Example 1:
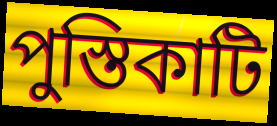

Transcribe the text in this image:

পুস্তিকাটি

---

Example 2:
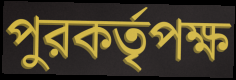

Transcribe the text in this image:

পুরকর্তৃপক্ষ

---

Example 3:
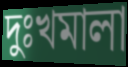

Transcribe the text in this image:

দুঃখমালা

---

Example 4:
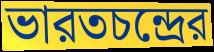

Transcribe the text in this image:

ভারতচন্দ্রের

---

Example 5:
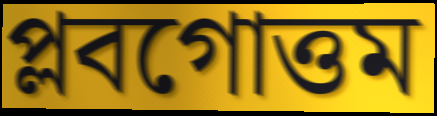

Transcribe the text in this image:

প্লবগোত্তম